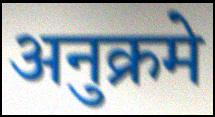
अनुक्रमे